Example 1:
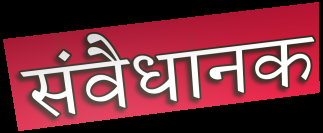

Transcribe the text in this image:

संवैधानक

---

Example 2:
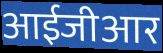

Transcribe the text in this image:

आईजीआर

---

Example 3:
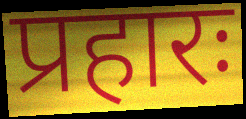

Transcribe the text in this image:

प्रहारः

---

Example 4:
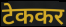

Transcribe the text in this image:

टेककर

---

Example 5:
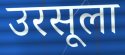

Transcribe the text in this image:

उरसूला